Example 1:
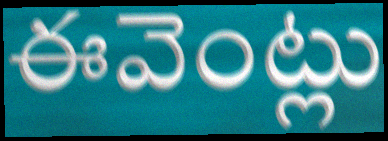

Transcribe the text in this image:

ఈవెంట్లు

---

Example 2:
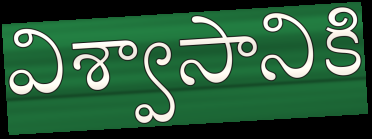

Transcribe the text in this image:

విశ్వాసానికి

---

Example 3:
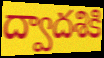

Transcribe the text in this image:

ద్వాదశికి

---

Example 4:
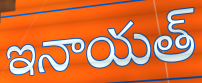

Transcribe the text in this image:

ఇనాయత్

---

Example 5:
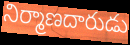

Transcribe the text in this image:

నిర్మాణదారుడు